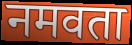
नमवता